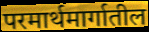
परमार्थमार्गातील